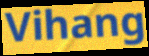
Vihang